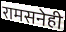
रामसनेही